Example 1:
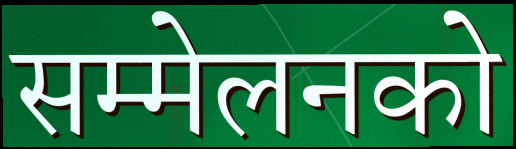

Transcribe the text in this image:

सम्मेलनको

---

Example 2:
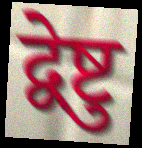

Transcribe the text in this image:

द्वेष्टु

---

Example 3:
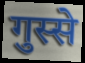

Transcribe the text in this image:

गुस्‍से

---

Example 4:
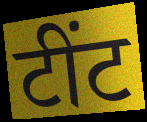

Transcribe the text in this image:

टींट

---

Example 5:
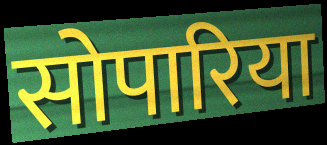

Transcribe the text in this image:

सोपारिया